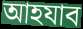
আহযাব